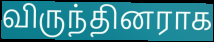
விருந்தினராக